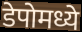
डेपोमध्ये